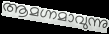
ആമഗ്നമാവുന്നു